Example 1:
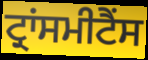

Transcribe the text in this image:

ਟ੍ਰਾਂਸਮੀਟੈਂਸ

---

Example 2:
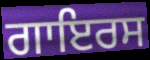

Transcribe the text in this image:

ਗਾਇਰਸ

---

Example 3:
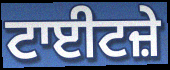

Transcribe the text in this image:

ਟਾਈਟਜ਼ੇ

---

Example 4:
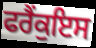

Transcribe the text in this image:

ਫਰੈਂਕੁਇਸ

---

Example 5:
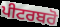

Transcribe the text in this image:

ਪੀਟਰਬਰੋ